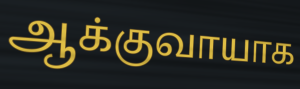
ஆக்குவாயாக